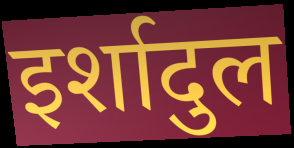
इर्शादुल